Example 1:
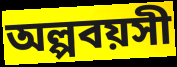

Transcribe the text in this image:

অল্পবয়সী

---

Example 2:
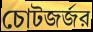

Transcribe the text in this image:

চোটজর্জর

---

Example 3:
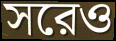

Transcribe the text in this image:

সরেও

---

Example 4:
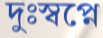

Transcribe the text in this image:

দুঃস্বপ্নে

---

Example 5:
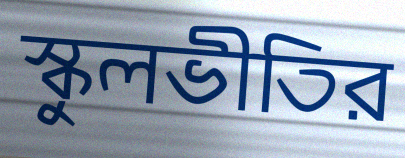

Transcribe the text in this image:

স্কুলভীতির